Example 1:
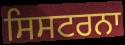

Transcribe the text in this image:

ਸਿਸਟਰਨਾ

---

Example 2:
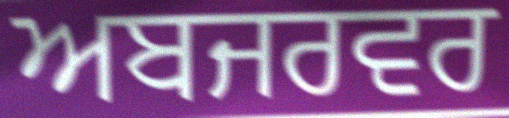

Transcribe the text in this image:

ਅਬਜਰਵਰ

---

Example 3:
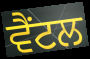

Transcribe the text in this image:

ਵੈਂਟਲ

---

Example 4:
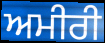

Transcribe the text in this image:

ਅਮੀਰੀ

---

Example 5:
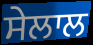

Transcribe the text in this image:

ਸੇਲਾਲ